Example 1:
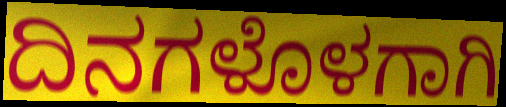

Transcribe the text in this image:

ದಿನಗಳೊಳಗಾಗಿ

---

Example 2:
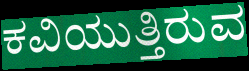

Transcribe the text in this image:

ಕವಿಯುತ್ತಿರುವ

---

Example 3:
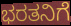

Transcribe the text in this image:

ಭರತನಿಗೆ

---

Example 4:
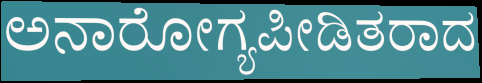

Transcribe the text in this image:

ಅನಾರೋಗ್ಯಪೀಡಿತರಾದ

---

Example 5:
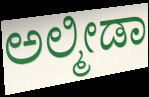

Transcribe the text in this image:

ಅಲ್ಮೀಡಾ